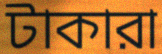
টাকারা